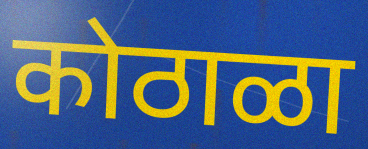
कोठाळा